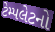
ટેમ્પલેટનો